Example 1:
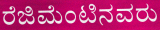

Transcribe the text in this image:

ರೆಜಿಮೆಂಟಿನವರು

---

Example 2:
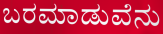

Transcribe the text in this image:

ಬರಮಾಡುವೆನು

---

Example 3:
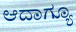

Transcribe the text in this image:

ಆದಾಗ್ಯೂ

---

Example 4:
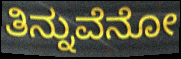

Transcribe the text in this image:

ತಿನ್ನುವೆನೋ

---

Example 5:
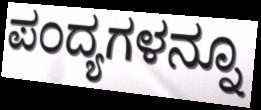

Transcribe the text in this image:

ಪಂದ್ಯಗಳನ್ನೂ